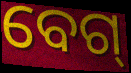
ବେଗ୍